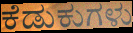
ಕೆಡುಕುಗಳು